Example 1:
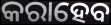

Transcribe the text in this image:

କରାହେବ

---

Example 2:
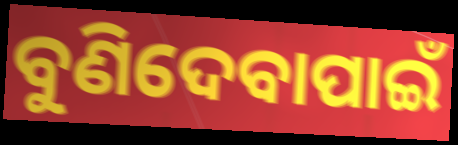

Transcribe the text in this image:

ବୁଣିଦେବାପାଇଁ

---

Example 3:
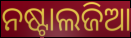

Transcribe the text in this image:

ନଷ୍ଟାଲଜିଆ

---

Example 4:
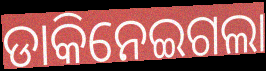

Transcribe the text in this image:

ଡାକିନେଇଗଲା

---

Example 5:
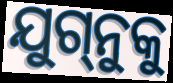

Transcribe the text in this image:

ଯୁଗ୍‌ନୁକୁ